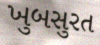
ખુબસુરત